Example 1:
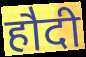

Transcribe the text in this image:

हौदी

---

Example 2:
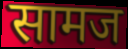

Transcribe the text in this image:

सामज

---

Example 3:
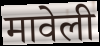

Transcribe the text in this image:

मावेली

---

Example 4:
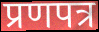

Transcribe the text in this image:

प्रणपत्र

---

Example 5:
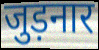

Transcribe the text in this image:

जुड़नार